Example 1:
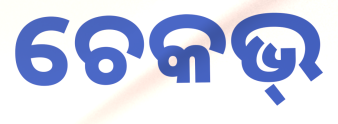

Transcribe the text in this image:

ଚେକଭ୍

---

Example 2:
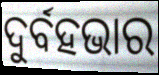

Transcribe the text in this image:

ଦୁର୍ବହଭାର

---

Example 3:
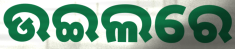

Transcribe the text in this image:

ଉଇଲରେ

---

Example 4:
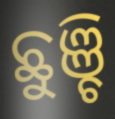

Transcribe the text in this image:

ଛୁଞ୍ଚି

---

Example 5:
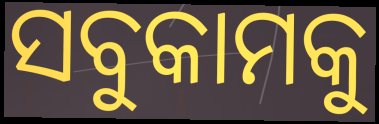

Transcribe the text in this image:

ସବୁକାମକୁ